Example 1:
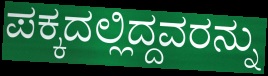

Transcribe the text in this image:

ಪಕ್ಕದಲ್ಲಿದ್ದವರನ್ನು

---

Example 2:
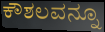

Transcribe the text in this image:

ಕೌಶಲವನ್ನೂ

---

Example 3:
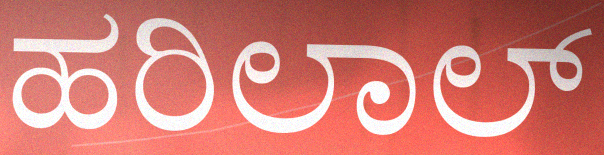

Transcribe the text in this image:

ಹರಿಲಾಲ್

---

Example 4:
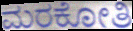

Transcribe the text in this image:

ಮರಕೋತಿ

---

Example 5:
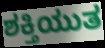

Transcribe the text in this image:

ಶಕ್ತಿಯುತ